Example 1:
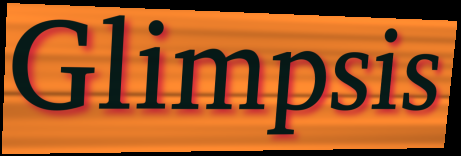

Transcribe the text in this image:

Glimpsis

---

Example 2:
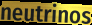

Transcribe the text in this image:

neutrinos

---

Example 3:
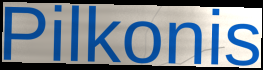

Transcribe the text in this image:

Pilkonis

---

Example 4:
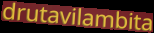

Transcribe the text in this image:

drutavilambita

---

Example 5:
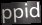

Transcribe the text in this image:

ppid